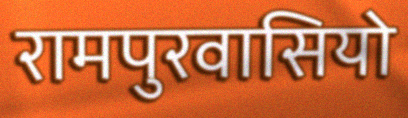
रामपुरवासियो